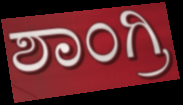
ಶಾಂಗ್ರಿ